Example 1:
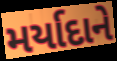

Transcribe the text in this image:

મર્યાદાને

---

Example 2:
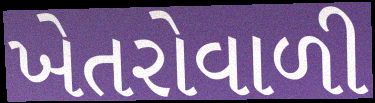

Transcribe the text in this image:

ખેતરોવાળી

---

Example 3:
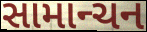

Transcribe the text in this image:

સામાન્ચન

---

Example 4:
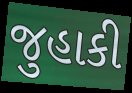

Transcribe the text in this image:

જુહાકી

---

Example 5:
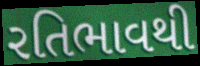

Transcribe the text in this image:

રતિભાવથી